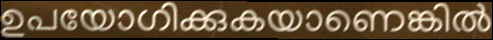
ഉപയോഗിക്കുകയാണെങ്കിൽ